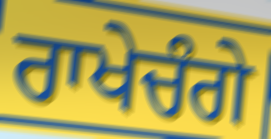
ਰਾਖੇਚੰਗੇ